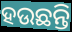
ହଉଛନ୍ତି